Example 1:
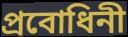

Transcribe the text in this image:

প্রবোধিনী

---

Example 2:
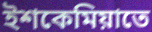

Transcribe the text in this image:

ইশকেমিয়াতে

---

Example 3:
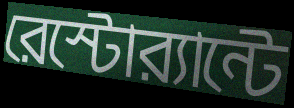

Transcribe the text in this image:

রেস্টোর‍্যান্টে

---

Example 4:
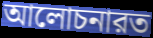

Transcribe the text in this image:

আলোচনারত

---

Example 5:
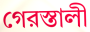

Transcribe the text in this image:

গেরস্তালী